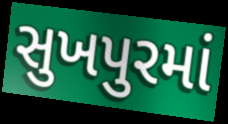
સુખપુરમાં